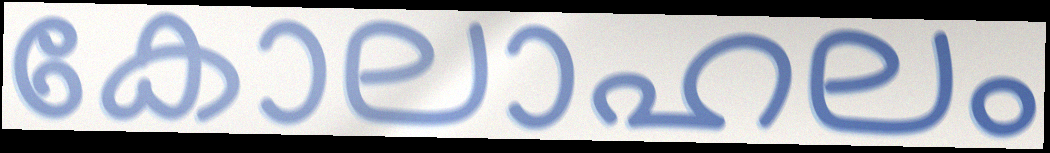
കോലാഹലം